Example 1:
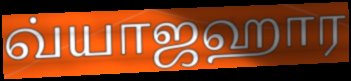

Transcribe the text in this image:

வ்யாஜஹார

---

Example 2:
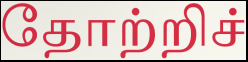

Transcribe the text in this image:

தோற்றிச்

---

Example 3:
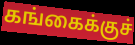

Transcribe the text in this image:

கங்கைக்குச்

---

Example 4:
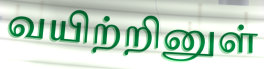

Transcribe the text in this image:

வயிற்றினுள்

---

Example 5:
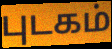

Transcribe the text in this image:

புடகம்